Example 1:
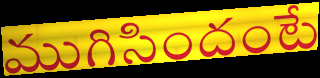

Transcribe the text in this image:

ముగిసిందంటే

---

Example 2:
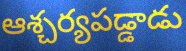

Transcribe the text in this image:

ఆశ్చర్యపడ్డాడు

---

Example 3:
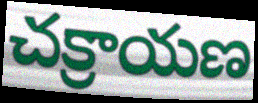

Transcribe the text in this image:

చక్రాయణ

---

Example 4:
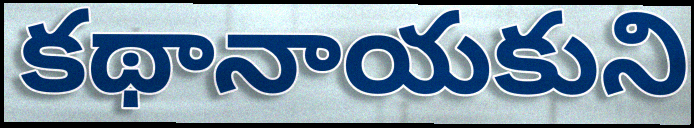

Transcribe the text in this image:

కథానాయకుని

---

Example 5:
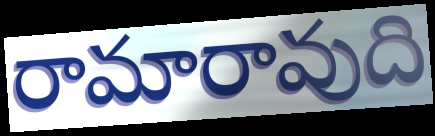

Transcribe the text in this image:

రామారావుది